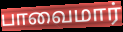
பாவைமார்